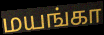
மயங்கா